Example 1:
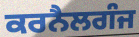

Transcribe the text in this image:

ਕਰਨੈਲਗੰਜ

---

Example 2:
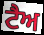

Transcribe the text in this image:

ਟੈਅ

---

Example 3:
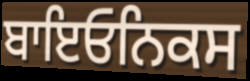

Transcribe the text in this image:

ਬਾਇਓਨਿਕਸ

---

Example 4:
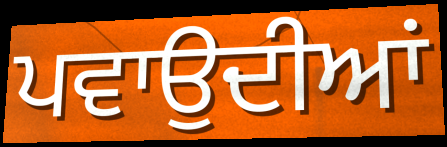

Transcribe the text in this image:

ਪਵਾਉਦੀਆਂ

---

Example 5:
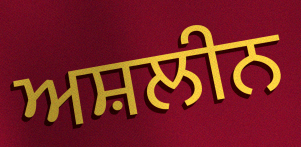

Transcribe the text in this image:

ਅਸ਼ਲੀਨ